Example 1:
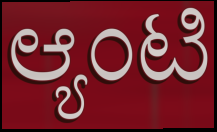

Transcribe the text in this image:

ಆ್ಯಂಟಿ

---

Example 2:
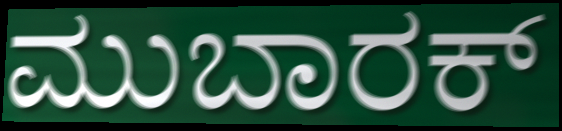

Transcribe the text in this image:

ಮುಬಾರಕ್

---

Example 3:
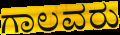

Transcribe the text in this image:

ಗಾಲವರು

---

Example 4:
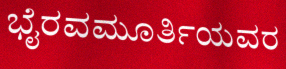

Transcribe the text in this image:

ಭೈರವಮೂರ್ತಿಯವರ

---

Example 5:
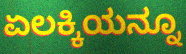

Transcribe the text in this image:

ಏಲಕ್ಕಿಯನ್ನೂ